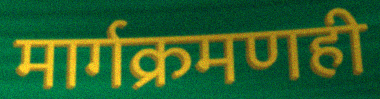
मार्गक्रमणही